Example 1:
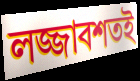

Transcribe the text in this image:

লজ্জাবশতই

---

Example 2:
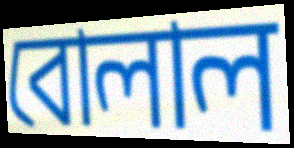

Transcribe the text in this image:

বোলাল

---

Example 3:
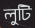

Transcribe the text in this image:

লুটি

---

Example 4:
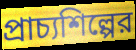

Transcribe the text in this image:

প্রাচ্যশিল্পের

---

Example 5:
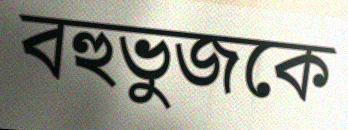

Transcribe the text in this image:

বহুভুজকে